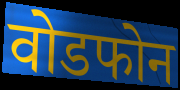
वोडफोन